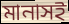
মানাসই